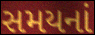
સમયનાં